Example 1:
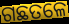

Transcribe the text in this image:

ଗଛତଳେ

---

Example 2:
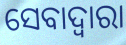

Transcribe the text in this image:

ସେବାଦ୍ବାରା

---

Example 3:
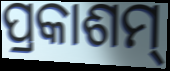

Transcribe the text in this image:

ପ୍ରକାଶମ୍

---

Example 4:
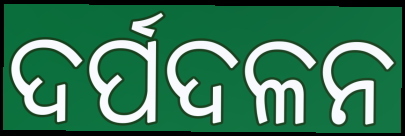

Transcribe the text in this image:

ଦର୍ପଦଳନ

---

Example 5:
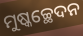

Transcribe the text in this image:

ମୁଷ୍କଚ୍ଛେଦନ